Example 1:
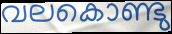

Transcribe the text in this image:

വലകൊണ്ടു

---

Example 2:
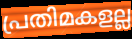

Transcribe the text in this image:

പ്രതിമകളല്ല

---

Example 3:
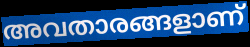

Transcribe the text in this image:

അവതാരങ്ങളാണ്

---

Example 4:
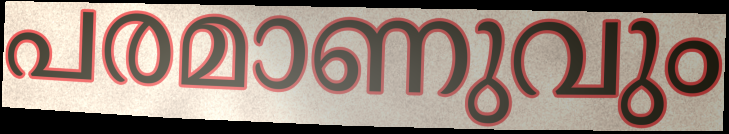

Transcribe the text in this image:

പരമാണുവും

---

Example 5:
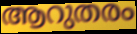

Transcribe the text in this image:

ആറുതരം